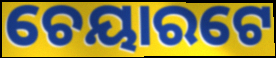
ଚେୟାରଟେ